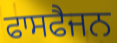
ਫਾਸਫੈਜਨ